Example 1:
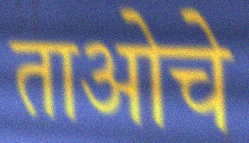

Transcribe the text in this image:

ताओचे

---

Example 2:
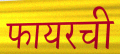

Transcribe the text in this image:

फायरची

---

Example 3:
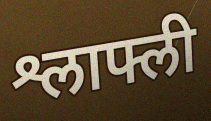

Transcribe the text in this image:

श्लाफ्ली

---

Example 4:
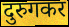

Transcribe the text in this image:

दुरुगकर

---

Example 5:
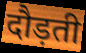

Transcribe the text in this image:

दौड़ती